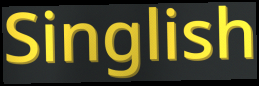
Singlish